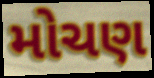
મોચણ